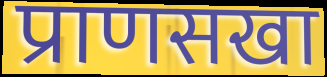
प्राणसखा